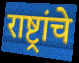
राष्ट्रांचे